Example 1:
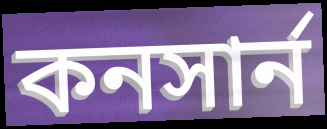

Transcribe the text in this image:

কনসার্ন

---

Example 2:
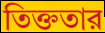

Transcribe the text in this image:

তিক্ততার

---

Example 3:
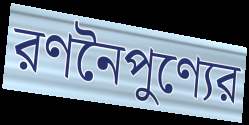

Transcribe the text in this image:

রণনৈপুণ্যের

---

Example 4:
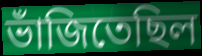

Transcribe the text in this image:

ভাঁজিতেছিল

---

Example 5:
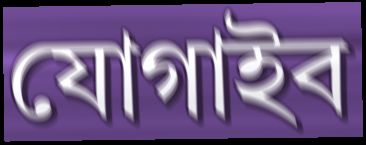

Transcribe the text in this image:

যোগাইব